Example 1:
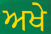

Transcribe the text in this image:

ਅਖੇ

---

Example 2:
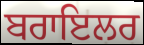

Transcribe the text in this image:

ਬਰਾਇਲਰ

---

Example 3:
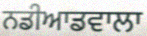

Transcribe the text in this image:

ਨਡੀਆਡਵਾਲਾ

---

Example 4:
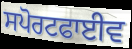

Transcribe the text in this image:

ਸਪੋਰਟਫਾਈਵ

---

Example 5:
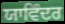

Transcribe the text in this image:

ਯਾਵਿੰਦਰ